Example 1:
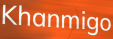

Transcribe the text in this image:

Khanmigo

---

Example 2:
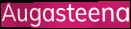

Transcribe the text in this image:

Augasteena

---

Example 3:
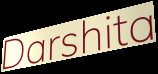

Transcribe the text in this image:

Darshita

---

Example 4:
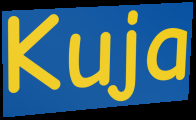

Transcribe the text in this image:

Kuja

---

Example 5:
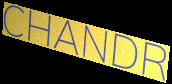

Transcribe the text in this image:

CHANDR